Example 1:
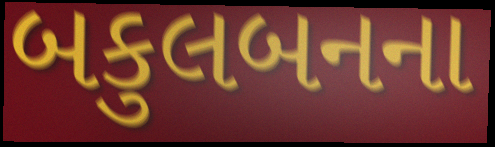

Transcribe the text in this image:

બકુલબનના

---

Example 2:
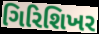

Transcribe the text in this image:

ગિરિશિખર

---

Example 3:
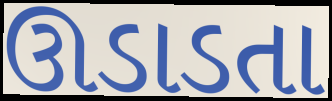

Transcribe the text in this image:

ઊડાડતા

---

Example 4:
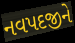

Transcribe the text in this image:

નવપદજીને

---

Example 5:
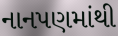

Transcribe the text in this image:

નાનપણમાંથી